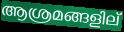
ആശ്രമങ്ങളില്